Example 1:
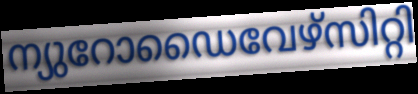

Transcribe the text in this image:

ന്യുറോഡൈവേഴ്സിറ്റി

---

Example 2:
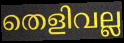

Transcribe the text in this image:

തെളിവല്ല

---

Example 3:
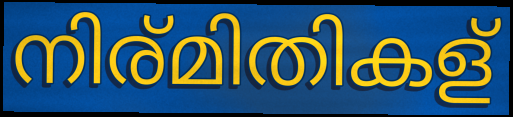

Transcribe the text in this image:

നിര്മിതികള്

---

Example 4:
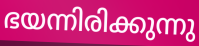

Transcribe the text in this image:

ഭയന്നിരിക്കുന്നു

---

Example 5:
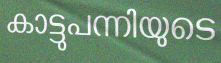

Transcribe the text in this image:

കാട്ടുപന്നിയുടെ